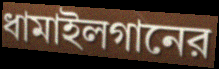
ধামাইলগানের